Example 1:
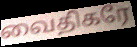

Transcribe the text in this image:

வைதிகரே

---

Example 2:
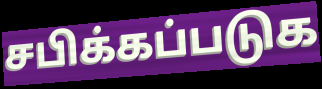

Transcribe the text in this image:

சபிக்கப்படுக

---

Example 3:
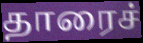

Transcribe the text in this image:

தாரைச்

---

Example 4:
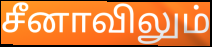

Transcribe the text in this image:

சீனாவிலும்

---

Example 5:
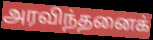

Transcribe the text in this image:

அரவிந்தனைக்